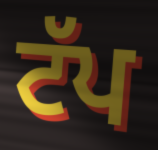
ਟੱਪ